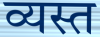
व्यस्त